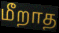
மீறாத